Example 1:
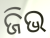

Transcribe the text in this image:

ଜିଭ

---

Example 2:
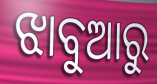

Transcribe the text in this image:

ଝାବୁଆରୁ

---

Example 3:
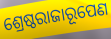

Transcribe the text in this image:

ଶ୍ରେଷ୍ଠରାଜାରୂପେଣ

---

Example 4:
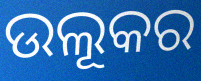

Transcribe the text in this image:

ଉଲୂକର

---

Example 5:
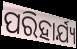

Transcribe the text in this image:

ପରିହାର୍ଯ୍ୟ